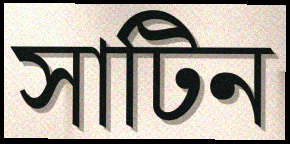
সাটিন